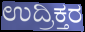
ಉದ್ರಿಕ್ತರ